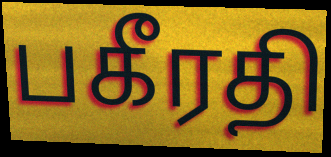
பகீரதி